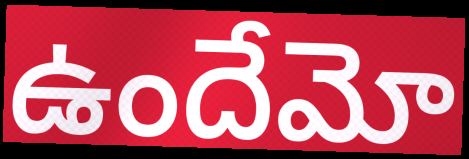
ఉందేమో